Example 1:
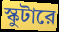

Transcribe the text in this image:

স্কুটারে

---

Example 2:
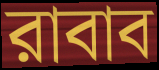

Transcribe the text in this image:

রাবাব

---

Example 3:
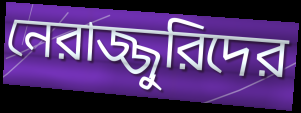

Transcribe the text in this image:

নেরাজ্জুরিদের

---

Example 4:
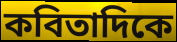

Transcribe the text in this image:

কবিতাদিকে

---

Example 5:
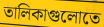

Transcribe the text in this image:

তালিকাগুলোতে